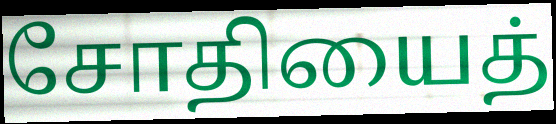
சோதியைத்